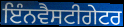
ਇੰਨਵੈਸਟੀਗੇਟਰ